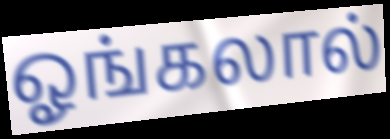
ஓங்கலால்